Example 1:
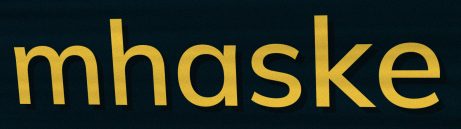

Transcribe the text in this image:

mhaske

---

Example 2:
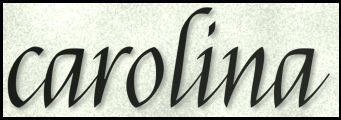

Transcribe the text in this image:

carolina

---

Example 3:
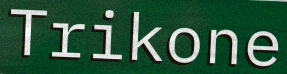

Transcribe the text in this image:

Trikone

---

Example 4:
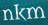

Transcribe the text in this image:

nkm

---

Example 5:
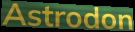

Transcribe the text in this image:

Astrodon